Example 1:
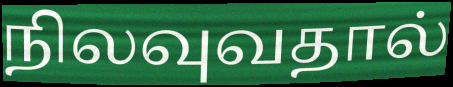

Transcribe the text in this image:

நிலவுவதால்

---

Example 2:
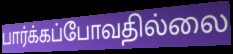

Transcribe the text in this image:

பார்க்கப்போவதில்லை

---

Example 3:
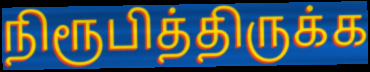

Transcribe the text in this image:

நிரூபித்திருக்க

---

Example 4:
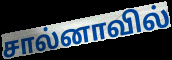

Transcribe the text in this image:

சால்னாவில்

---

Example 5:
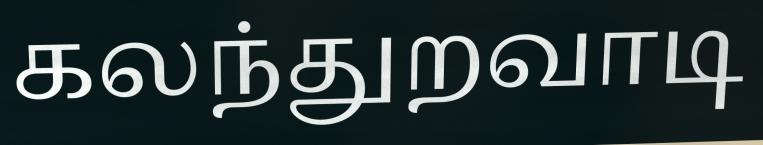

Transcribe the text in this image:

கலந்துறவாடி